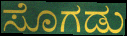
ಸೊಗಡು